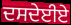
ਦਸਦੇਈਏ